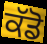
ਕੱਡੋ